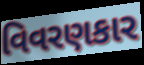
વિવરણકાર